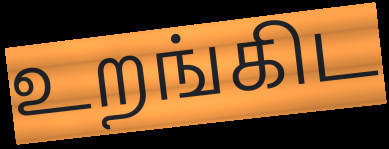
உறங்கிட